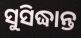
ସୁସିଦ୍ଧାନ୍ତ